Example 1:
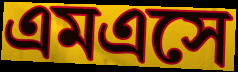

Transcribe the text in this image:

এমএসে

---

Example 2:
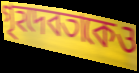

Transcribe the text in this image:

গৃহদেবতাকেও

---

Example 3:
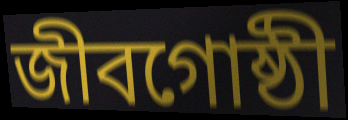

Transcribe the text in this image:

জীবগোষ্ঠী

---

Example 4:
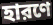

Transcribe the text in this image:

হারণে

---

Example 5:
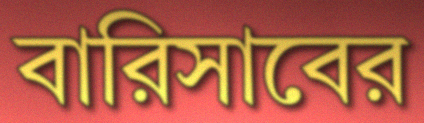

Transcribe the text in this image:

বারিসাবের